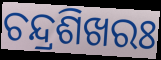
ଚନ୍ଦ୍ରଶିଖରଃ